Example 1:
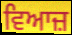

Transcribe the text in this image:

ਵਿਆਜ਼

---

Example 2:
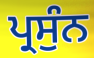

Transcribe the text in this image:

ਪ੍ਰਸੁੰਨ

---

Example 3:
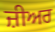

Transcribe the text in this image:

ਜ਼ੀਅਰ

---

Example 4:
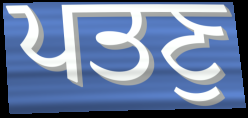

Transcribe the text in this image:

ਪਤਣੁ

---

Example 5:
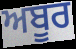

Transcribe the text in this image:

ਅਬੂਰ